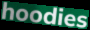
hoodies